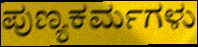
ಪುಣ್ಯಕರ್ಮಗಳು